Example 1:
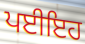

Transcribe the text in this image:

ਪਈਇਹ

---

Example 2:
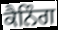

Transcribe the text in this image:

ਕੈਨਿੰਗ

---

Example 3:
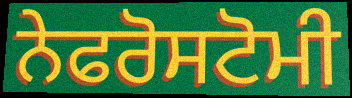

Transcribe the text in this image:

ਨੇਫਰੋਸਟੋਮੀ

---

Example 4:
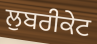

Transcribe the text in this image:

ਲੁਬਰੀਕੇਟ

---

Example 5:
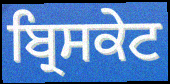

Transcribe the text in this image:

ਬ੍ਰਿਸਕੇਟ